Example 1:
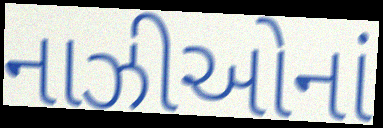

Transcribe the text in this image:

નાઝીઓનાં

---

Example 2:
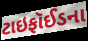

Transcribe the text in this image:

ટાઇફૉઈડના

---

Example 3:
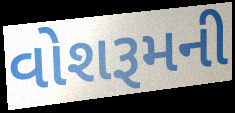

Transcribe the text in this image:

વોશરૂમની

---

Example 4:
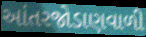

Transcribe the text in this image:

આંતરજોડાણવાળી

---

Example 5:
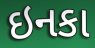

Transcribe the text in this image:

ઇનકા